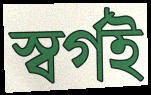
স্বৰ্গই